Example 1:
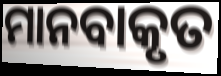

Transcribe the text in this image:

ମାନବାକୃତ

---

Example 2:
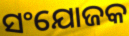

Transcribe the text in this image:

ସଂଯୋଜକ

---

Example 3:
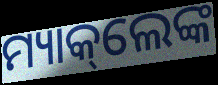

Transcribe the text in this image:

ମ୍ୟାକ୍‌ଲେଙ୍କ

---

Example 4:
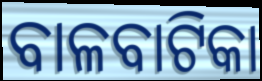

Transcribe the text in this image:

ବାଳବାଟିକା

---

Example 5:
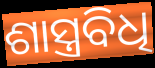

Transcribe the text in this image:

ଶାସ୍ତ୍ରବିଧି